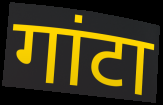
गांटा